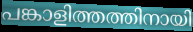
പങ്കാളിത്തത്തിനായി